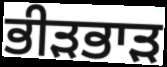
ਭੀੜਭਾੜ